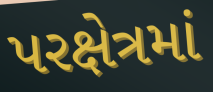
પરક્ષેત્રમાં